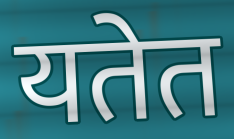
यतेत